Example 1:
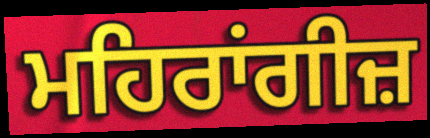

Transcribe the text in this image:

ਮਹਿਰਾਂਗੀਜ਼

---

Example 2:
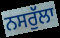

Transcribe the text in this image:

ਨਸਰੁੱਲਾ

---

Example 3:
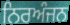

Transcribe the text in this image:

ਨਿਰਅੰਜਨ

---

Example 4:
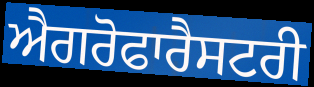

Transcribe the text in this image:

ਐਗਰੋਫਾਰੈਸਟਰੀ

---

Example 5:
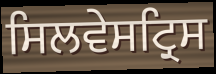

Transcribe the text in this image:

ਸਿਲਵੇਸਟ੍ਰਿਸ